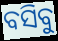
ବସିବୁ